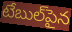
టేబుల్‌పైన